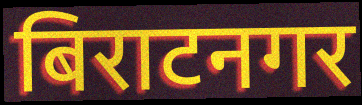
बिराटनगर